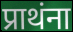
प्राथंना